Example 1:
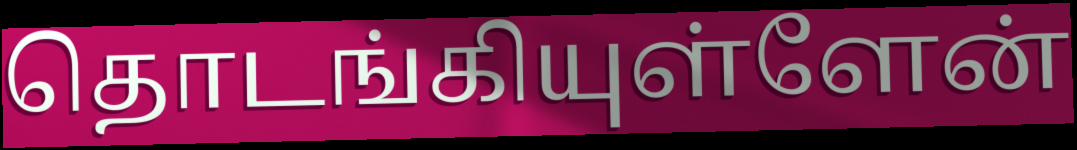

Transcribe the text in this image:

தொடங்கியுள்ளேன்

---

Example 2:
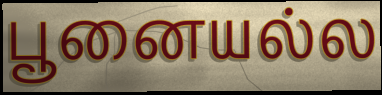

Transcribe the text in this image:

பூனையல்ல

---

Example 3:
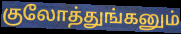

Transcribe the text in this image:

குலோத்துங்கனும்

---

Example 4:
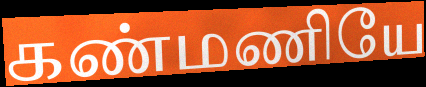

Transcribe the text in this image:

கண்மணியே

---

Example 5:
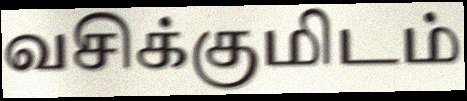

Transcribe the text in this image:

வசிக்குமிடம்